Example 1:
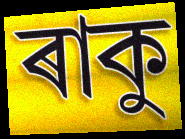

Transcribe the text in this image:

ৰাকু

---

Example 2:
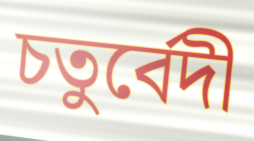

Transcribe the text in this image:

চতুৰ্বেদী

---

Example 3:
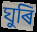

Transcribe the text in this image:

ঘুৰি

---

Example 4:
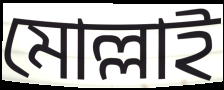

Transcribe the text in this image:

মোল্লাই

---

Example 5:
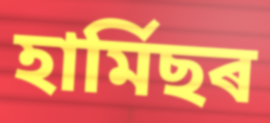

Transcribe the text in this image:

হাৰ্মিছৰ